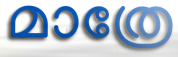
മാത്രേ